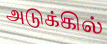
அடுக்கில்